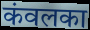
कंवलका